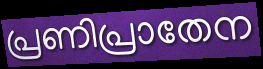
പ്രണിപ്രാതേന